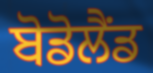
ਬੋਡੋਲੈਂਡ